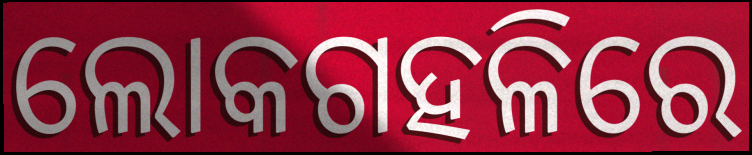
ଲୋକଗହଳିରେ